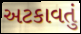
અટકાવતું